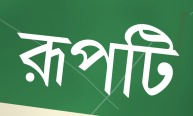
রূপটি